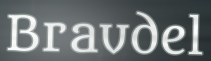
Braudel